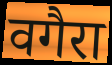
वगैरा